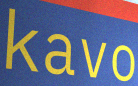
kavo